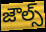
జౌల్స్